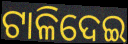
ଟାଳିଦେଇ